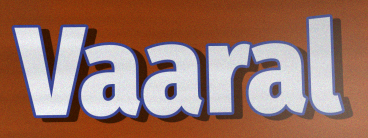
Vaaral